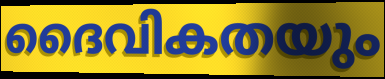
ദൈവികതയും